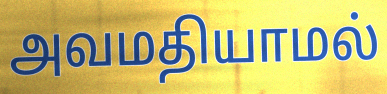
அவமதியாமல்